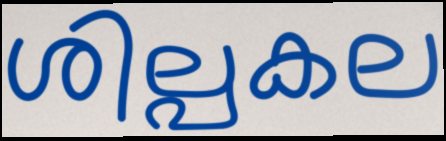
ശില്പകല